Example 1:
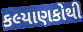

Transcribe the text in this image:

કલ્યાણકોથી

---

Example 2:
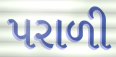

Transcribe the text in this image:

પરાળી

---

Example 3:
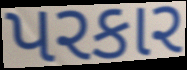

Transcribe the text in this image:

પરકાર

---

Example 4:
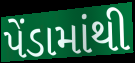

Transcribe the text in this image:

પેંડામાંથી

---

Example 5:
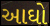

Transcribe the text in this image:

આઘો